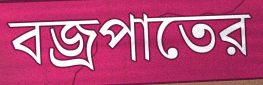
বজ্রপাতের